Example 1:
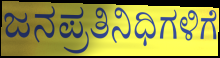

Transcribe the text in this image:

ಜನಪ್ರತಿನಿಧಿಗಳಿಗೆ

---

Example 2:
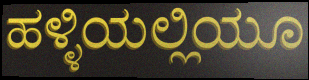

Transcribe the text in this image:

ಹಳ್ಳಿಯಲ್ಲಿಯೂ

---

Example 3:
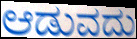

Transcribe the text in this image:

ಆಡುವದು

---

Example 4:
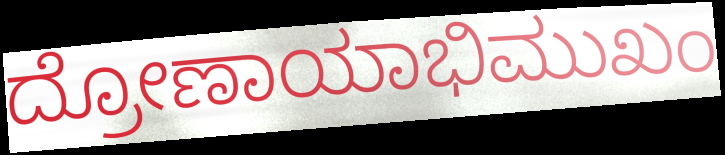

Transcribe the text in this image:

ದ್ರೋಣಾಯಾಭಿಮುಖಂ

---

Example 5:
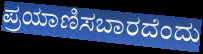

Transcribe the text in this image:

ಪ್ರಯಾಣಿಸಬಾರದೆಂದು